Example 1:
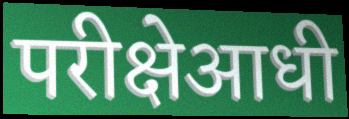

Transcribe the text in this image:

परीक्षेआधी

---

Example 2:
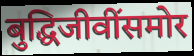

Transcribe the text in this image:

बुद्धिजीवींसमोर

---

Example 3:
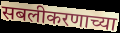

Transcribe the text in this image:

सबलीकरणाच्या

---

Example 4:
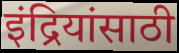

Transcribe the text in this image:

इंद्रियांसाठी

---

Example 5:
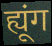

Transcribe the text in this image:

ह्यूंग